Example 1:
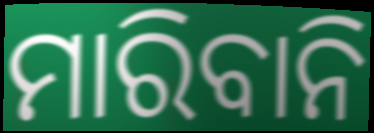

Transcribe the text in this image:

ମାରିବାନି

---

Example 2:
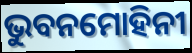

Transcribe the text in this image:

ଭୁବନମୋହିନୀ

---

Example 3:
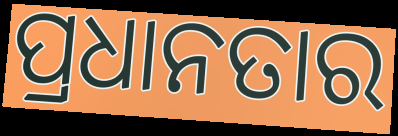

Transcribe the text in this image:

ପ୍ରଧାନତାର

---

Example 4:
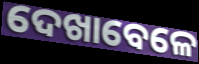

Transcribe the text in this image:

ଦେଖାବେଳେ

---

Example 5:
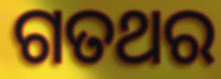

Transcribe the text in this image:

ଗତଥର